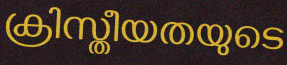
ക്രിസ്തീയതയുടെ